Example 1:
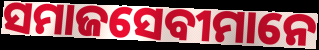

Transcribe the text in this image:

ସମାଜସେବୀମାନେ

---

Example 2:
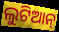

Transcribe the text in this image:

ଲୁଟିଆନ୍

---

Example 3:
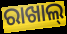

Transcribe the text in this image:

ରାଖାଲ୍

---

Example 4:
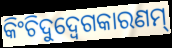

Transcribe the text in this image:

କିଂଚିଦୁଦ୍ବେଗକାରଣମ୍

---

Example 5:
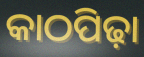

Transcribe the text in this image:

କାଠପିଢ଼ା